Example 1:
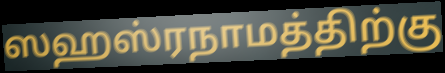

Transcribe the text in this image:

ஸஹஸ்ரநாமத்திற்கு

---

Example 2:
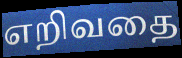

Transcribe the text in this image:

எறிவதை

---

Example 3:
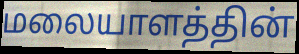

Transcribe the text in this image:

மலையாளத்தின்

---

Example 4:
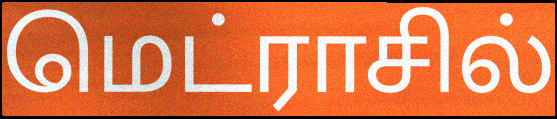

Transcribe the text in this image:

மெட்ராசில்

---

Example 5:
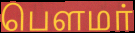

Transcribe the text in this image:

பௌமர்